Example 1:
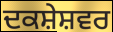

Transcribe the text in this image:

ਦਕਸ਼ੇਸ਼ਵਰ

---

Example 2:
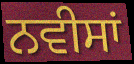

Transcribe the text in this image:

ਨਵੀਸਾਂ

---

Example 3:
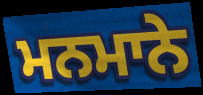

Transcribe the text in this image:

ਮਨਮਾਨੇ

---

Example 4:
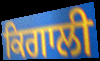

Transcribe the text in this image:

ਕਿਗਾਲੀ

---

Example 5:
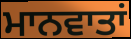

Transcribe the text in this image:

ਮਾਨਵਾਤਾਂ